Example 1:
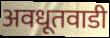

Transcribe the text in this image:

अवधूतवाडी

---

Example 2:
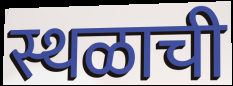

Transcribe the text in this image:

स्थळाची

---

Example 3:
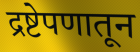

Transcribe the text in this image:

द्रष्टेपणातून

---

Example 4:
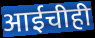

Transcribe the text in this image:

आईचीही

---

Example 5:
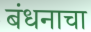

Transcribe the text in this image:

बंधनाचा